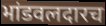
भांडवलदारच